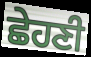
ਛੇਹਣੀ